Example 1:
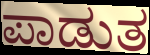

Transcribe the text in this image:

ಪಾಡುತ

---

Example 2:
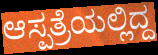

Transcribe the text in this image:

ಆಸ್ಪತ್ರೆಯಲ್ಲಿದ್ದ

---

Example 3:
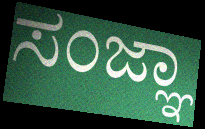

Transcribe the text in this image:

ಸಂಜ್ಞಾ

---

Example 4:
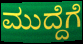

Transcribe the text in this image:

ಮುದ್ದೆಗೆ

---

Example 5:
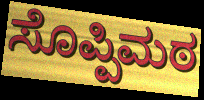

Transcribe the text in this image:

ಸೊಪ್ಪಿಮಠ